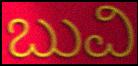
ಬುವಿ